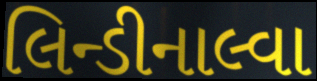
લિન્ડીનાલ્વા